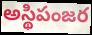
అస్థిపంజర